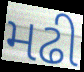
મઢી